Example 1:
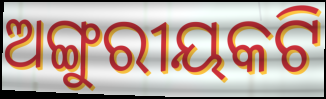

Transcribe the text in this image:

ଅଙ୍ଗୁରୀୟକଟି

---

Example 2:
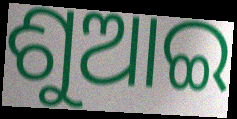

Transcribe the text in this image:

ଶୁଆଇ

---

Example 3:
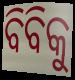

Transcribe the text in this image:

ବିବିକୁ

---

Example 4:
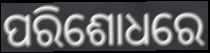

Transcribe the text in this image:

ପରିଶୋଧରେ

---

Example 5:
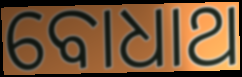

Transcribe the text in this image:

ବୋଧାଥ